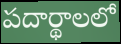
పదార్థాలలో